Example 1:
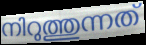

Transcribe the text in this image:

നിറുത്തുന്നത്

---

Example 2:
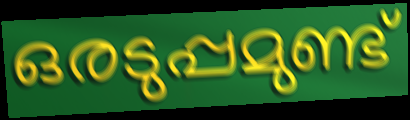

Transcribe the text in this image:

ഒരടുപ്പമുണ്ട്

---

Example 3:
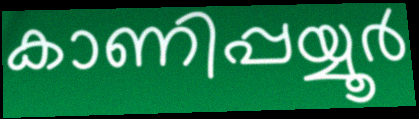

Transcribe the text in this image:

കാണിപ്പയ്യൂർ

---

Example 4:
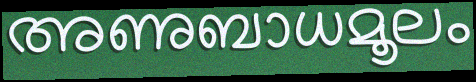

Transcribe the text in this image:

അണുബാധമൂലം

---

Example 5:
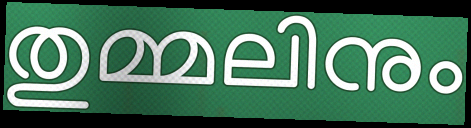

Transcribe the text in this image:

തുമ്മലിനും